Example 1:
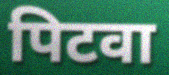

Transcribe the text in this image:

पिटवा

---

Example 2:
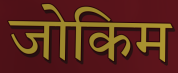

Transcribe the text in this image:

जोकिम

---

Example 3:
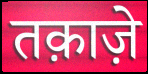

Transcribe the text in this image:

तक़ाज़े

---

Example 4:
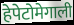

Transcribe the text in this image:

हेपेटोमेगाली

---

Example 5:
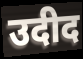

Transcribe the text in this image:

उदीद